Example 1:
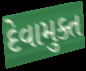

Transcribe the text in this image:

દેવામુક્ત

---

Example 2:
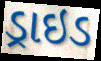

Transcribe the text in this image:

ડ્રાઇડ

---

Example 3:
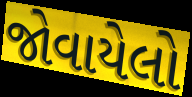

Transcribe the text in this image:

જોવાયેલો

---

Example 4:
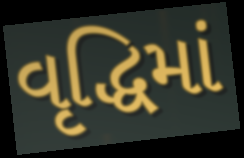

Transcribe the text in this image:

વૃદ્ધિમાં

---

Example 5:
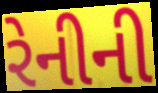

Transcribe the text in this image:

રેનીની